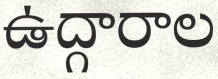
ఉద్గారాల